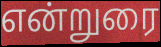
என்றுரை